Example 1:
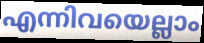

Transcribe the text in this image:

എന്നിവയെല്ലാം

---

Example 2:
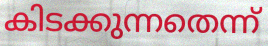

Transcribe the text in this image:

കിടക്കുന്നതെന്ന്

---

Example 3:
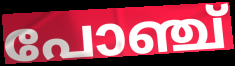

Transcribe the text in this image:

പോഞ്ച്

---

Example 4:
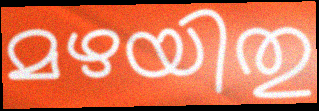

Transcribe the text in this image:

മഴയിതു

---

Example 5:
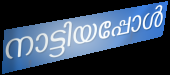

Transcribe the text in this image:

നാട്ടിയപ്പോൾ